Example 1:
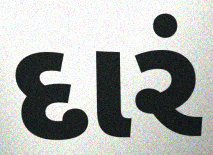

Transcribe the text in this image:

દારં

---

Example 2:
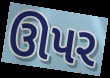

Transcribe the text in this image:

ઊપર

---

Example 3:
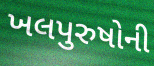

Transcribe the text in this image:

ખલપુરુષોની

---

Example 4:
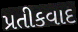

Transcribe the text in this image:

પ્રતીકવાદ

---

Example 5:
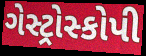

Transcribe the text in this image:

ગેસ્ટ્રોસ્કોપી